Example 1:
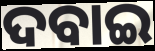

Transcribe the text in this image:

ଦବାଇ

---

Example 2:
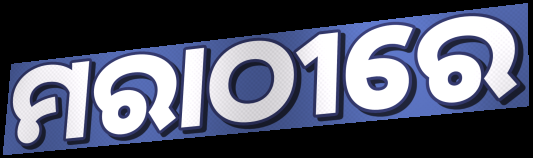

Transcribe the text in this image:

ମରାଠୀରେ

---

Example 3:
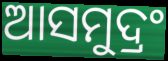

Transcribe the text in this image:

ଆସମୁଦ୍ରଂ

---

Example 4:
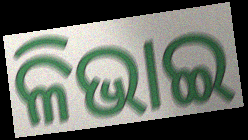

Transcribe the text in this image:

ଳିଭାଇ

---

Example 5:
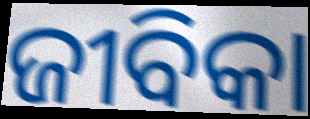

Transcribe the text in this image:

ଜୀବିକା